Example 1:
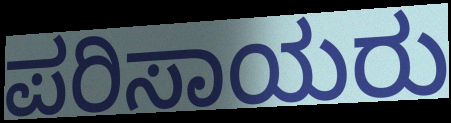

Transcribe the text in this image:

ಪರಿಸಾಯರು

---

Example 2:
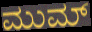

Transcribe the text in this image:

ಮುಮ್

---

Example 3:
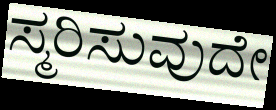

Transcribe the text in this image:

ಸ್ಮರಿಸುವುದೇ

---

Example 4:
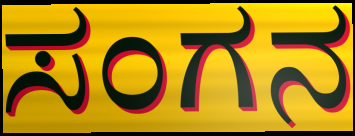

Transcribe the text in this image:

ಸಂಗನ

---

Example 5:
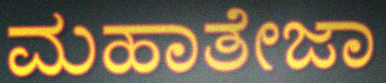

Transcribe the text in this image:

ಮಹಾತೇಜಾ